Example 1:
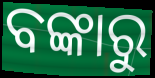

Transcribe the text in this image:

ବଙ୍କାରୁ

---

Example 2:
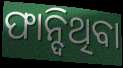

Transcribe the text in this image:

ଫାନ୍ଦିଥିବା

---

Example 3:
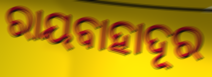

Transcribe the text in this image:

ରାୟବାହାଦୂର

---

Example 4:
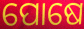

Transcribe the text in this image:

ପୋଷେ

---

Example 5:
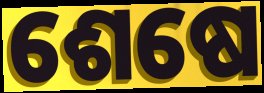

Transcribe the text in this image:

ଶେଷେ